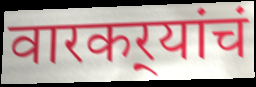
वारकर्यांचं